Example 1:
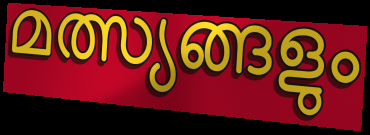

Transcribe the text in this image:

മത്സ്യങ്ങളും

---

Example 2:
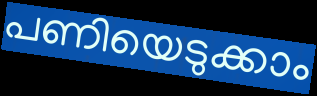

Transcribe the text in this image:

പണിയെടുക്കാം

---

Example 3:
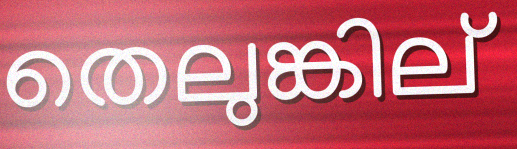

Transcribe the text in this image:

തെലുങ്കില്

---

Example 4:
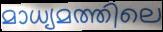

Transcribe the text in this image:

മാധ്യമത്തിലെ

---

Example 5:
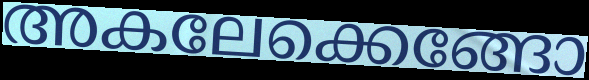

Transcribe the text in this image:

അകലേക്കെങ്ങോ